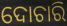
ଦୋଚାରି